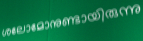
ശലോമോനുണ്ടായിരുന്നു